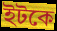
ইটকে